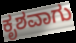
ಕೃಶವಾಗು